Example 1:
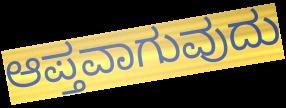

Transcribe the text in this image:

ಆಪ್ತವಾಗುವುದು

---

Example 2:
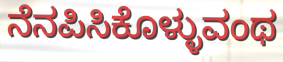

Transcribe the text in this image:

ನೆನಪಿಸಿಕೊಳ್ಳುವಂಥ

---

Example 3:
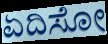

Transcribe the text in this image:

ಏದಿಸೋ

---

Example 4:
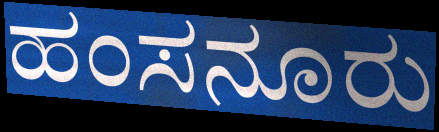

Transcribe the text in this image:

ಹಂಸನೂರು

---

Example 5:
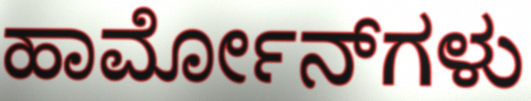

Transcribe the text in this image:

ಹಾರ್ಮೋನ್‌ಗಳು